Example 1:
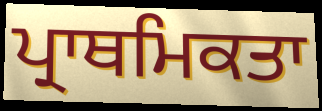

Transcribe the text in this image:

ਪ੍ਰਾਥਮਿਕਤਾ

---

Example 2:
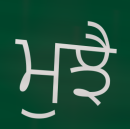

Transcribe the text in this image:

ਮੁਝੈ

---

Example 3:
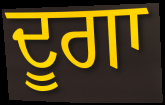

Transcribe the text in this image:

ਦੂਗਾ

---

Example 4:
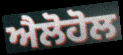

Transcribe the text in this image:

ਐਲੋਹੋਲ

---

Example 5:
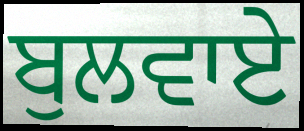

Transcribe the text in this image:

ਬੁਲਵਾਏ